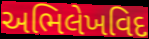
અભિલેખવિદ